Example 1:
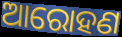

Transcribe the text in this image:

ଆରୋହଣ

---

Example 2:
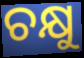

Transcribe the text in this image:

ଚକ୍ଷୁ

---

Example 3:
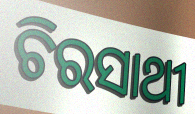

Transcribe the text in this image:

ଚିରସାଥୀ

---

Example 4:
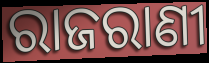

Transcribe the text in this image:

ରାଜରାଣୀ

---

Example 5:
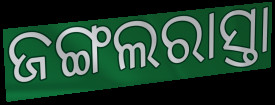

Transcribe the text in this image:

ଜଙ୍ଗଲରାସ୍ତା